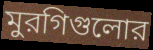
মুরগিগুলোর